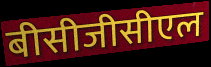
बीसीजीसीएल